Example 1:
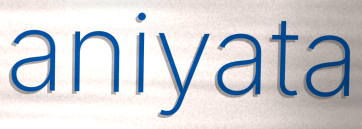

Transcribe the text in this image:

aniyata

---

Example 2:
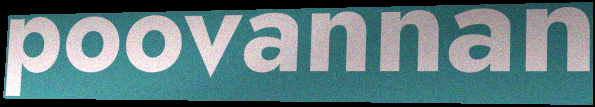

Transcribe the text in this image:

poovannan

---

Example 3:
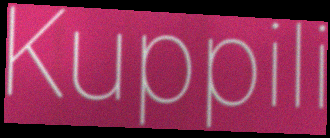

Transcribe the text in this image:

Kuppili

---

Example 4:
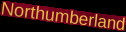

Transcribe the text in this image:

Northumberland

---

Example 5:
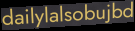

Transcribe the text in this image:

dailylalsobujbd